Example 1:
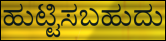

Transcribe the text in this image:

ಹುಟ್ಟಿಸಬಹುದು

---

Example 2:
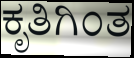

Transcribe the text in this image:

ಕೃತಿಗಿಂತ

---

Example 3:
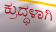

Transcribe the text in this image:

ಕ್ರುದ್ಧಳಾಗಿ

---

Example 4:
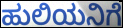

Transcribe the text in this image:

ಹುಲಿಯನಿಗೆ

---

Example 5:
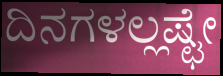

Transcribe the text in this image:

ದಿನಗಳಲ್ಲಷ್ಟೇ